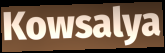
Kowsalya